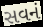
સવનં